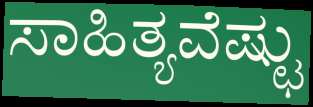
ಸಾಹಿತ್ಯವೆಷ್ಟು